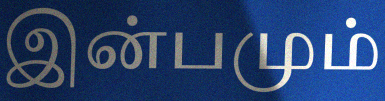
இன்பமும்